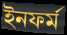
ইনফর্ম